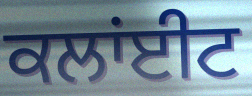
ਕਲਾਂਈਟ